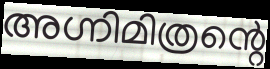
അഗ്നിമിത്രന്റെ